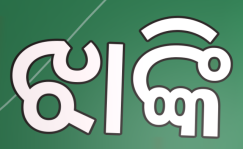
ଝାଙ୍କି